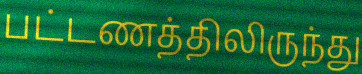
பட்டணத்திலிருந்து